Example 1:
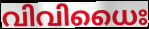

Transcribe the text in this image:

വിവിധൈഃ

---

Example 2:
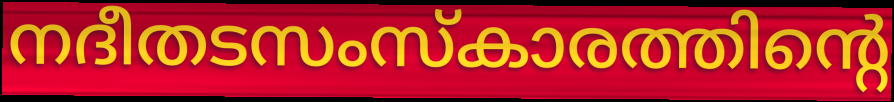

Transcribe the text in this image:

നദീതടസംസ്കാരത്തിന്റെ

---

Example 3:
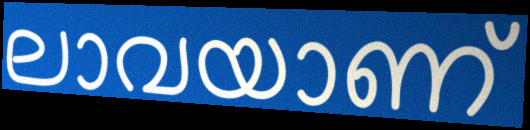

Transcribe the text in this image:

ലാവയാണ്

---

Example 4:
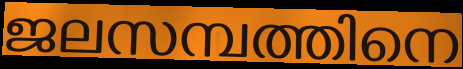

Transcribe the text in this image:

ജലസമ്പത്തിനെ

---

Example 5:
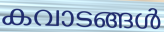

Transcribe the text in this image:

കവാടങ്ങൾ